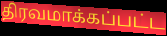
திரவமாக்கப்பட்ட